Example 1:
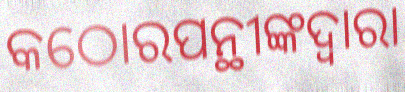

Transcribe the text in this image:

କଠୋରପନ୍ଥୀଙ୍କଦ୍ୱାରା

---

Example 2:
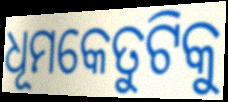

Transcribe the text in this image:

ଧୂମକେତୁଟିକୁ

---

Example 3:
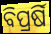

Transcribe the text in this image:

ବିପ୍ରର୍ଷି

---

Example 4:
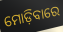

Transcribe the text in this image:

ମୋଡ଼ିବାରେ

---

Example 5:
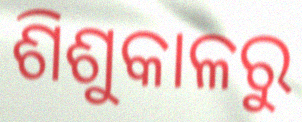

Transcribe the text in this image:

ଶିଶୁକାଳରୁ